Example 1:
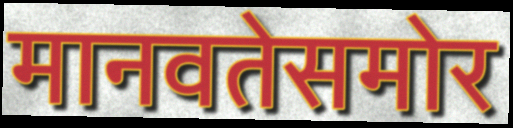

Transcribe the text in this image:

मानवतेसमोर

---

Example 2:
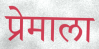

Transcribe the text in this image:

प्रेमाला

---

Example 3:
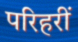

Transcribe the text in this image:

परिहरीं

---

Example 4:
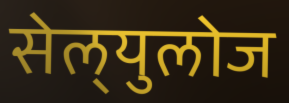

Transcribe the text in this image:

सेल्युलोज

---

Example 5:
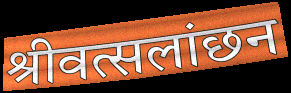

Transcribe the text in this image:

श्रीवत्सलांछन